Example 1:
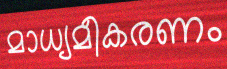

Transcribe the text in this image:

മാധ്യമീകരണം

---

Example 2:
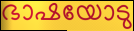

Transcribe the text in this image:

ഭാഷയോടു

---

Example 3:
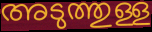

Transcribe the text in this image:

അടുത്തുള്ള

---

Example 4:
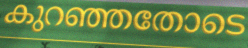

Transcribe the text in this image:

കുറഞ്ഞതോടെ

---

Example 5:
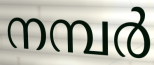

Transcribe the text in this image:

നമ്പർ